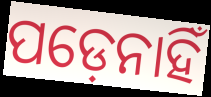
ପଡ଼େନାହିଁ